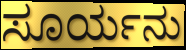
ಸೂರ್ಯನು